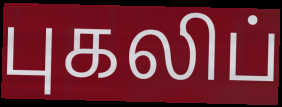
புகலிப்